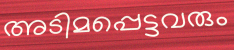
അടിമപ്പെട്ടവരും